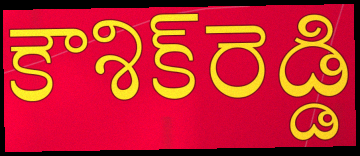
కౌశిక్‌రెడ్డి